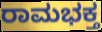
ರಾಮಭಕ್ತ